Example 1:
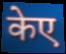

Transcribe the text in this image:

केए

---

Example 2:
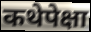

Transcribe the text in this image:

कथेपेक्षा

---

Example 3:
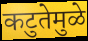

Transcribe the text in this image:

कटुतेमुळे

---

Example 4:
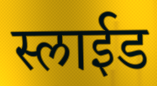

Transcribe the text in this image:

स्लाईड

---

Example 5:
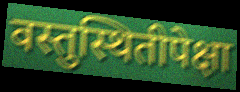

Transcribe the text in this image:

वस्तुस्थितीपेक्षा